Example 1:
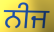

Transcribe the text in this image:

ਨੀਜ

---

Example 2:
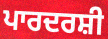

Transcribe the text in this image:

ਪਾਰਦਰਸ਼ੀ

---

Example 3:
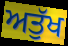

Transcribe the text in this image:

ਅਤੁੱਖ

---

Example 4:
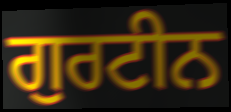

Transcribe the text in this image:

ਗੁਰਟੀਨ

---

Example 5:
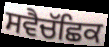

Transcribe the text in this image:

ਸਵੈਚੱਛਿਕ